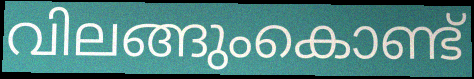
വിലങ്ങുംകൊണ്ട്